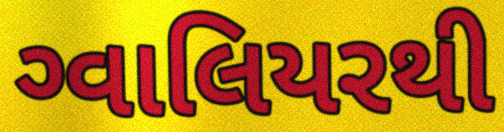
ગ્વાલિયરથી